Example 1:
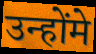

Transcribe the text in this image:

उन्होंमे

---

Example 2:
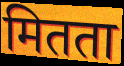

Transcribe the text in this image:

मितता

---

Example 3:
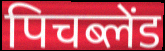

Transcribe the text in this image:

पिचब्लेंड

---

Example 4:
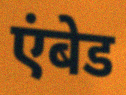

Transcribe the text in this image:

एंबेड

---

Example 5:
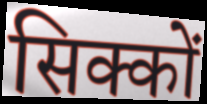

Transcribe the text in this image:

सिक्कों